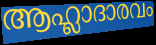
ആഹ്ലാദാരവം